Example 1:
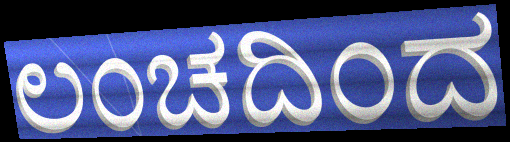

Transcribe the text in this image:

ಲಂಚದಿಂದ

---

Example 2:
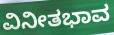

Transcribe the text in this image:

ವಿನೀತಭಾವ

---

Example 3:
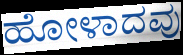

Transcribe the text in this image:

ಹೋಳಾದವು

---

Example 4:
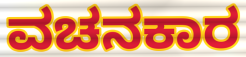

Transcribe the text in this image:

ವಚನಕಾರ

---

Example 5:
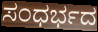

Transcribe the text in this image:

ಸಂಧರ್ಭದ